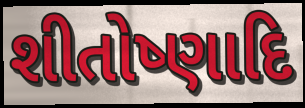
શીતોષ્ણાદિ